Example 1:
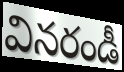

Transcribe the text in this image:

వినరండీ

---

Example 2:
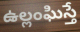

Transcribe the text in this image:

ఉల్లంఘిస్తే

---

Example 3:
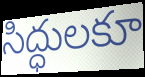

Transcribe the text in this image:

సిద్ధులకూ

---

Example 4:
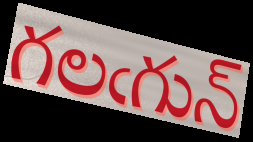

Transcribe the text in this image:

గలఁగున్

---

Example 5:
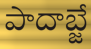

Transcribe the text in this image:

పాదాబ్జే